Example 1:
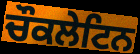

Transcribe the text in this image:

ਚੌਕਲੇਟਿਨ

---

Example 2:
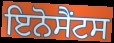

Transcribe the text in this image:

ਇਨੋਸੈਂਟਸ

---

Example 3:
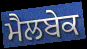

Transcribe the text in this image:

ਮੈਲਬੇਕ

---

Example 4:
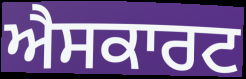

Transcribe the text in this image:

ਐਸਕਾਰਟ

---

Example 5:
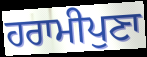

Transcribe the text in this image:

ਹਰਾਮੀਪੁਣਾ